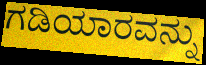
ಗಡಿಯಾರವನ್ನು